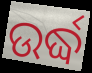
ଉର୍ଦ୍ଧ